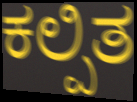
ಕಲ್ಪಿತ